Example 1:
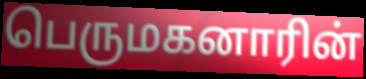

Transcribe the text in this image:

பெருமகனாரின்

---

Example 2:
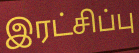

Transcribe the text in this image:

இரட்சிப்பு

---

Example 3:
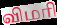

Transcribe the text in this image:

விமரி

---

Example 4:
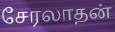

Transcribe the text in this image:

சேரலாதன்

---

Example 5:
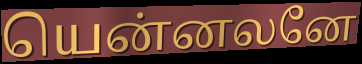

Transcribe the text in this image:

யென்னலனே